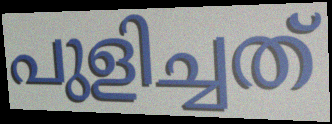
പുളിച്ചത്